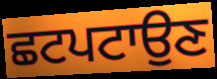
ਛਟਪਟਾਉਣ